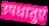
उपधातुएं